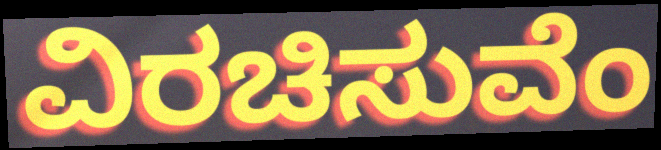
ವಿರಚಿಸುವೆಂ